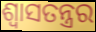
ଶ୍ଵାସତନ୍ତ୍ରର